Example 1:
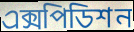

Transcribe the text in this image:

এক্সপিডিশন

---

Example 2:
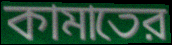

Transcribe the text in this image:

কামাতের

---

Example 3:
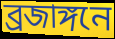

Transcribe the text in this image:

ব্রজাঙ্গনে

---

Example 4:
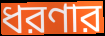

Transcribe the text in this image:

ধরণার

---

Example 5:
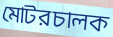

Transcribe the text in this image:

মোটরচালক